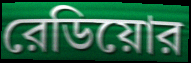
রেডিয়োর